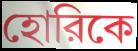
হোরিকে